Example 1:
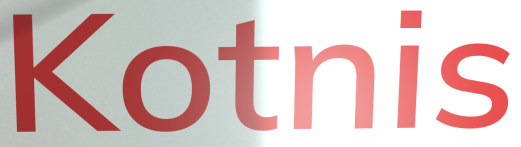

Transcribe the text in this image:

Kotnis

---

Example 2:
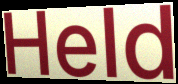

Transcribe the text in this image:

Held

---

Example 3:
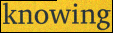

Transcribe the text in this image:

knowing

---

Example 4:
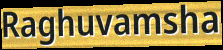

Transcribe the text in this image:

Raghuvamsha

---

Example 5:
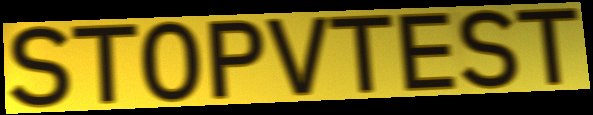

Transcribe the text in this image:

STOPVTEST